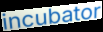
incubator